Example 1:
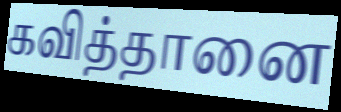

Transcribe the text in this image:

கவித்தானை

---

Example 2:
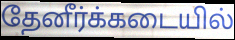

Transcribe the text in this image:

தேனீர்க்கடையில்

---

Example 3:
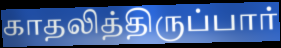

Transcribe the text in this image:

காதலித்திருப்பார்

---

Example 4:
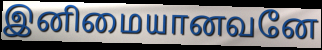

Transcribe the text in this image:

இனிமையானவனே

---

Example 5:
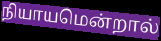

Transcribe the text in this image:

நியாயமென்றால்